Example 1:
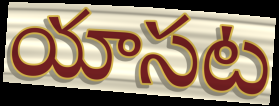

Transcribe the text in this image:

యాసట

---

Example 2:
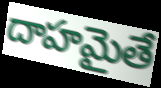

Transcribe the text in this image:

దాహమైతే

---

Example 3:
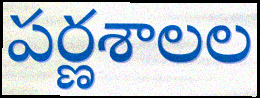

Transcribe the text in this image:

పర్ణశాలల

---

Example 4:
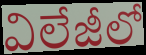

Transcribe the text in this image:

విలేజీలో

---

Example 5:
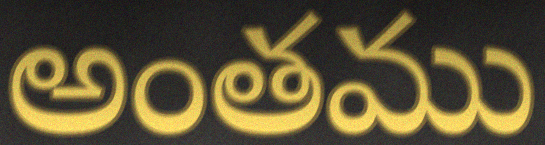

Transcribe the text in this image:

అంతము